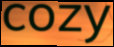
cozy